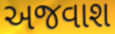
અજવાશ